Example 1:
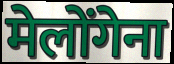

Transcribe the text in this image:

मेलोंगेना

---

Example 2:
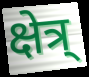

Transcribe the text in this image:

क्षेत्र्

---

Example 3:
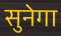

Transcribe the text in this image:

सुनेगा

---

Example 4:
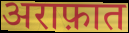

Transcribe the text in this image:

अराफ़ात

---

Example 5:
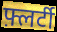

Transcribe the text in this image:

फ़्लर्टी